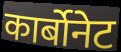
कार्बोनेट